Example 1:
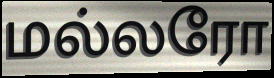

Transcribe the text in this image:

மல்லரோ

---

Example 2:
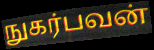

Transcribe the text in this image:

நுகர்பவன்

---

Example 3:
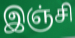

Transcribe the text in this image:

இஞ்சி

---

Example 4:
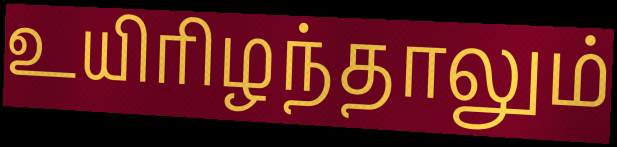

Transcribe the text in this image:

உயிரிழந்தாலும்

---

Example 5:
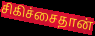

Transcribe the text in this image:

சிகிச்சைதான்